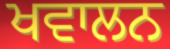
ਖਵਾਲਨ